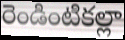
రెండింటికల్లా